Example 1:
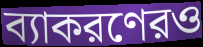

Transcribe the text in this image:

ব্যাকরণেরও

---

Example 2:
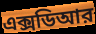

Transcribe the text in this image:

এক্সডিআর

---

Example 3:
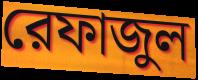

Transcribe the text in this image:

রেফাজুল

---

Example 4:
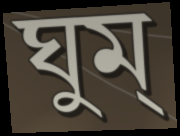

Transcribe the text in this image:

ঘুম্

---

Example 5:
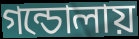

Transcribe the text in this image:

গন্ডোলায়